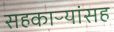
सहकाऱ्यांसह